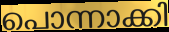
പൊന്നാക്കി